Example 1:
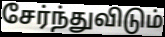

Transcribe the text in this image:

சேர்ந்துவிடும்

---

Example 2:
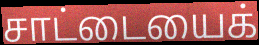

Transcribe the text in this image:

சாட்டையைக்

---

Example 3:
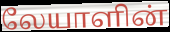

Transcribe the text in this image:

லேயாளின்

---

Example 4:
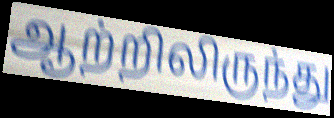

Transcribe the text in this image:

ஆற்றிலிருந்து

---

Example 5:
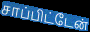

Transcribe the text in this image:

சாப்பிட்டேன்